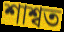
শাশ্বত